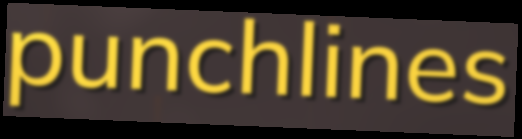
punchlines